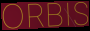
ORBIS